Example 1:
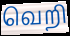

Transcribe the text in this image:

வெறி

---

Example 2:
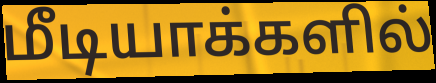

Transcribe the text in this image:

மீடியாக்களில்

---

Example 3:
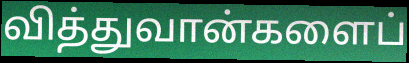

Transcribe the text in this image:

வித்துவான்களைப்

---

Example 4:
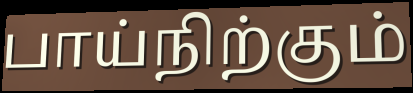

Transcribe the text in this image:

பாய்நிற்கும்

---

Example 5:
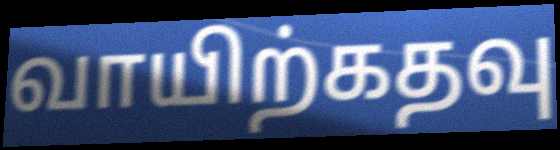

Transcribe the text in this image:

வாயிற்கதவு